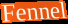
Fennel